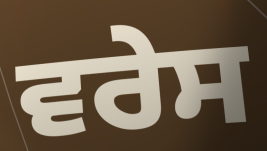
ਵਰੇਸ